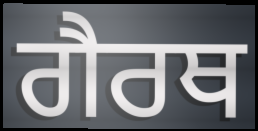
ਗੈਰਥ